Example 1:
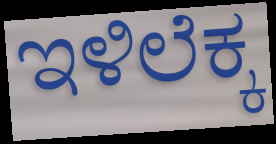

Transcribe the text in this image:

ಇಳಿಲೆಕ್ಕ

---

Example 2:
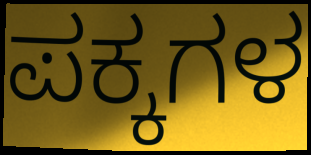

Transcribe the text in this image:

ಪಕ್ಕಗಳ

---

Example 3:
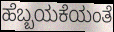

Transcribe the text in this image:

ಹೆಬ್ಬಯಕೆಯಂತೆ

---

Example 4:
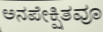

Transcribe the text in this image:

ಅನಪೇಕ್ಷಿತವೂ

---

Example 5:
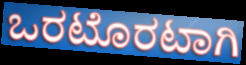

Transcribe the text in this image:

ಒರಟೊರಟಾಗಿ